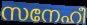
സനേഹീ